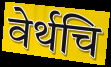
वेर्थचि